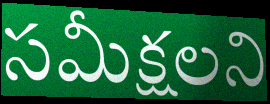
సమీక్షలని